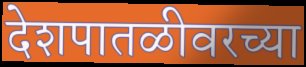
देशपातळीवरच्या